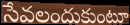
సేవలందుకుంటూ